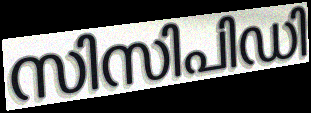
സിസിപിഡി